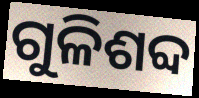
ଗୁଳିଶବ୍ଦ